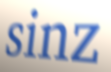
sinz